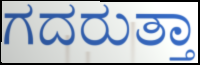
ಗದರುತ್ತಾ